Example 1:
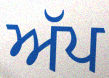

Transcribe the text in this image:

ਅੱਪ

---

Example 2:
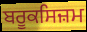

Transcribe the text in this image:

ਬਰੂਕਸਿਜ਼ਮ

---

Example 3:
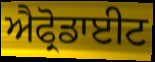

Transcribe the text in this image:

ਐਫ੍ਰੋਡਾਈਟ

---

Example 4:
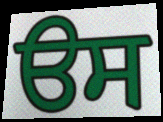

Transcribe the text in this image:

ੳਸ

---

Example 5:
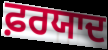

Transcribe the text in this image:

ਫ਼ਰਯਾਦ